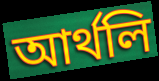
আর্থলি